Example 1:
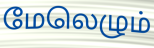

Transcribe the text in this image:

மேலெழும்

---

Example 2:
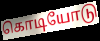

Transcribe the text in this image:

கொடியோடு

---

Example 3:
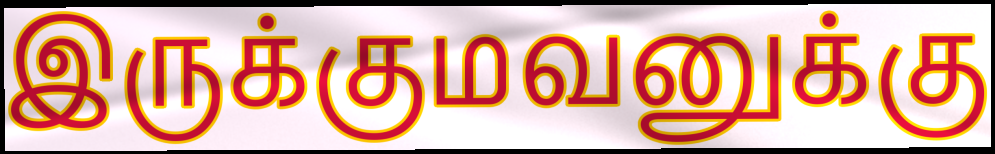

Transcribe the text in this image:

இருக்குமவனுக்கு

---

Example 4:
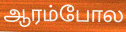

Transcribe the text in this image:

ஆரம்போல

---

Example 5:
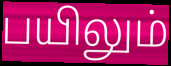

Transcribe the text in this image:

பயிலும்